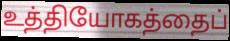
உத்தியோகத்தைப்